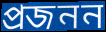
প্রজনন